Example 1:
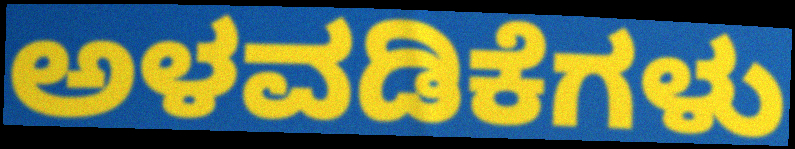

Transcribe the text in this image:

ಅಳವಡಿಕೆಗಳು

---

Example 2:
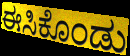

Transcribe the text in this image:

ಈಸಿಕೊಂಡು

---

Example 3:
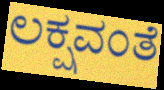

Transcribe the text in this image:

ಲಕ್ಷವಂತೆ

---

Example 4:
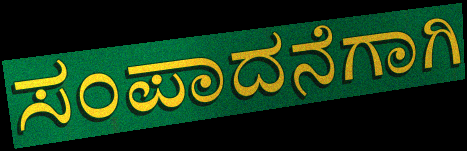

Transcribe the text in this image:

ಸಂಪಾದನೆಗಾಗಿ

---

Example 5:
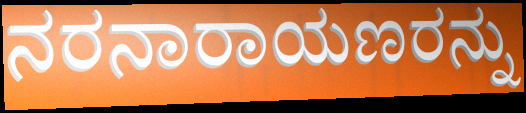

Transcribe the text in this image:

ನರನಾರಾಯಣರನ್ನು